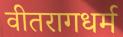
वीतरागधर्म